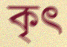
কৃৎ